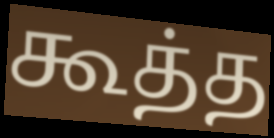
கூத்த